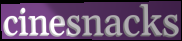
cinesnacks